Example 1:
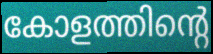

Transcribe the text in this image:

കോളത്തിന്റെ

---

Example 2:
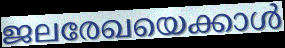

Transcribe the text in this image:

ജലരേഖയെക്കാൾ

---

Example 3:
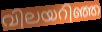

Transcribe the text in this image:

വിലയറിഞ്ഞ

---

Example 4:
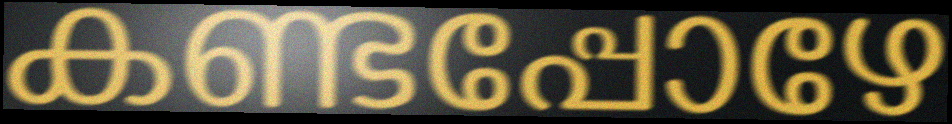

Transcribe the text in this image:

കണ്ടപ്പോഴേ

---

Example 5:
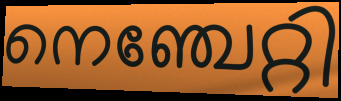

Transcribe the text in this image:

നെഞ്ചേറ്റി